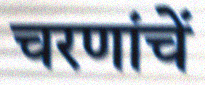
चरणांचें